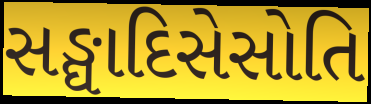
સઙ્ઘાદિસેસોતિ